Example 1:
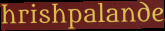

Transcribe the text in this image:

hrishpalande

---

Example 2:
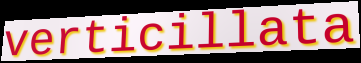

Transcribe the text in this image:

verticillata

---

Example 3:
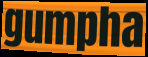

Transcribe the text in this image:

gumpha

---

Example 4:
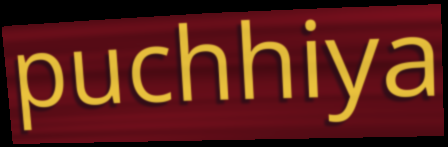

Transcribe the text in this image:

puchhiya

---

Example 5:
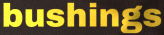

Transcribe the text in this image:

bushings